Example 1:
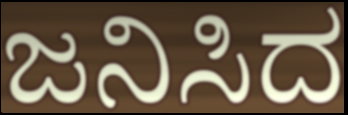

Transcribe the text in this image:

ಜನಿಸಿದ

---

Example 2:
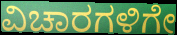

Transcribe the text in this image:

ವಿಚಾರಗಳಿಗೇ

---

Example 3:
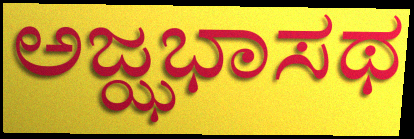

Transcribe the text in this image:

ಅಜ್ಝಭಾಸಥ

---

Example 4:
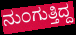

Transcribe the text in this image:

ನುಂಗುತ್ತಿದ್ದ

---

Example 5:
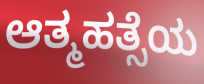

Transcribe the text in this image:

ಆತ್ಮಹತ್ಸೆಯ